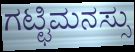
ಗಟ್ಟಿಮನಸ್ಸು